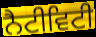
ਨੈਟੀਵਿਟੀ